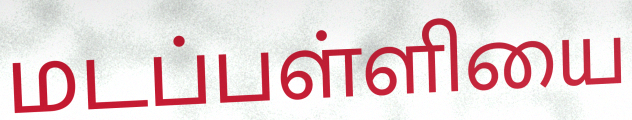
மடப்பள்ளியை